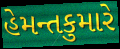
હેમન્તકુમારે